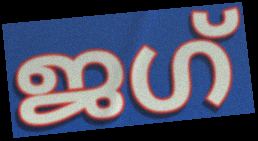
ജഗ്